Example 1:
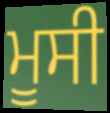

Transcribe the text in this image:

ਮੂਸੀ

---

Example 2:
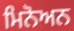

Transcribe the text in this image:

ਮਿਨੋਅਨ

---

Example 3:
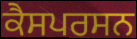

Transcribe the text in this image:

ਕੈਸਪਰਸਨ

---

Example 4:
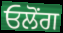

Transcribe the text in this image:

ਓਲੋਂਗ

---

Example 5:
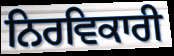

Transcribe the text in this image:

ਨਿਰਵਿਕਾਰੀ